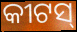
କୀଟସ୍